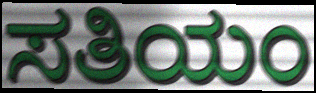
ಸತಿಯಂ